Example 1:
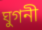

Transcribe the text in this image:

ঘুগনী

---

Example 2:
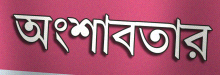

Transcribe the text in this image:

অংশাবতার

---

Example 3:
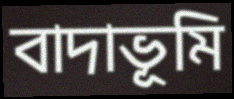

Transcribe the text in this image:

বাদাভূমি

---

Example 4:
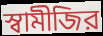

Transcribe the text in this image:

স্বামীজির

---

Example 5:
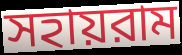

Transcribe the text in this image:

সহায়রাম